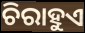
ଚିରାହୁଏ